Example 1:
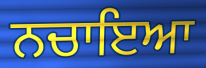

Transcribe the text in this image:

ਨਚਾਇਆ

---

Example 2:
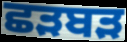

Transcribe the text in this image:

ਛੜਬੜ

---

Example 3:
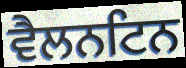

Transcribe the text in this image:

ਵੈਲਨਟਿਨ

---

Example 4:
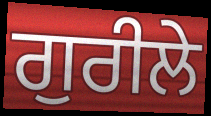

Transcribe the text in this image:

ਗੁਰੀਲੇ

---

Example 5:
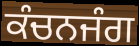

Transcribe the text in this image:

ਕੰਚਨਜੰਗ